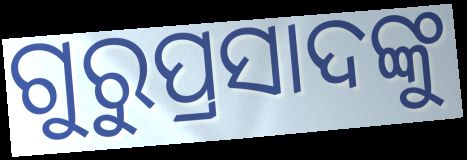
ଗୁରୁପ୍ରସାଦଙ୍କୁ